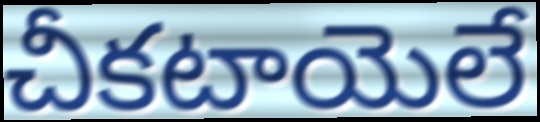
చీకటాయెలే